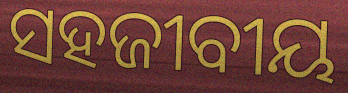
ସହଜୀବୀୟ